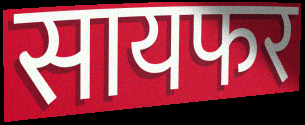
सायफर